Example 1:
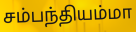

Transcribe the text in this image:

சம்பந்தியம்மா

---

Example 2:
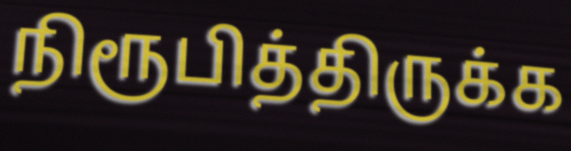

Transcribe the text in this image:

நிரூபித்திருக்க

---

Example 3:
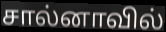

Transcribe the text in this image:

சால்னாவில்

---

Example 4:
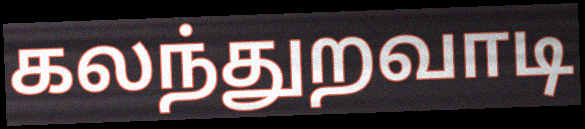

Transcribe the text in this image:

கலந்துறவாடி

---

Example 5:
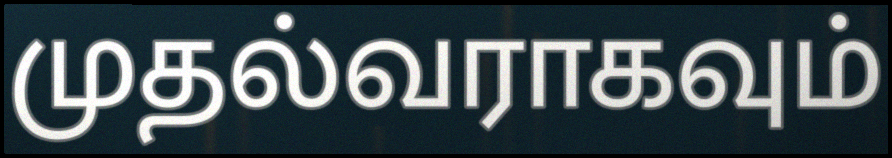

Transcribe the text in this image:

முதல்வராகவும்